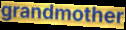
grandmother